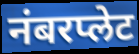
नंबरप्लेट